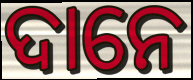
ଦାନେ